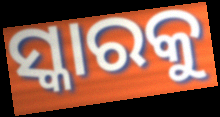
ସ୍କାରକୁ